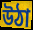
উঠা